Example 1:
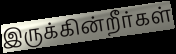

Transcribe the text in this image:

இருக்கின்றீர்கள்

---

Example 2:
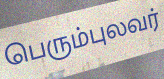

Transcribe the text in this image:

பெரும்புலவர்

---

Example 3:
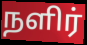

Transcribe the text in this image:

நளிர்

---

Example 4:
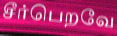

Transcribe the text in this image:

சீர்பெறவே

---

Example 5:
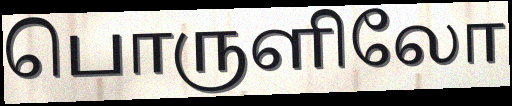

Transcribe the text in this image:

பொருளிலோ